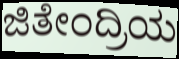
ಜಿತೇಂದ್ರಿಯ